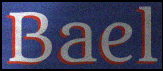
Bael